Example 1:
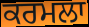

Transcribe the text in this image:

ਕਰਮਲਾ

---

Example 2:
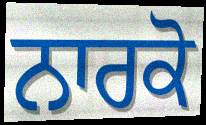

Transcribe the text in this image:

ਨਾਰਕੋ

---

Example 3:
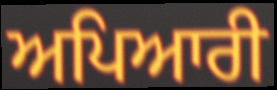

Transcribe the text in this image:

ਅਪਿਆਰੀ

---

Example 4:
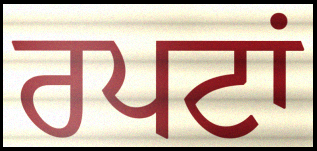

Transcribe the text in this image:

ਰਪਟਾਂ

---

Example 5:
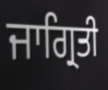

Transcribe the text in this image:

ਜਾਗ੍ਰਿਤੀ